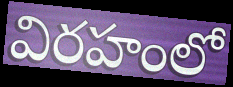
విరహంలో